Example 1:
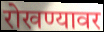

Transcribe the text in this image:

रोखण्यावर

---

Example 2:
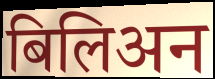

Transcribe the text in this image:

बिलिअन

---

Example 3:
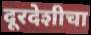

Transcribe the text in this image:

दूरदेशीचा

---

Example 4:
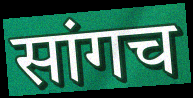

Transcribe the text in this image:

सांगच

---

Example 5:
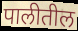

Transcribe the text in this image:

पालीतील